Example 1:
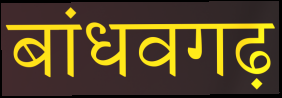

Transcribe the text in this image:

बांधवगढ़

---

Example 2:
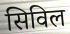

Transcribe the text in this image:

सिविल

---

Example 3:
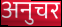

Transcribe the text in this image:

अनुचर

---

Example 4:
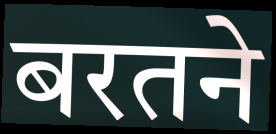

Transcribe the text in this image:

बरतने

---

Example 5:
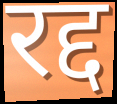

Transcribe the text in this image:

रद्द